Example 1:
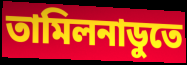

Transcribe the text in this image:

তামিলনাডুতে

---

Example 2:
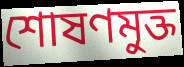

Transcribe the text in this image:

শোষণমুক্ত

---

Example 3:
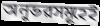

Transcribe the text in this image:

অনুভৱসমূহেই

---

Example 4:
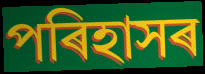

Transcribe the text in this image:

পৰিহাসৰ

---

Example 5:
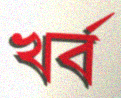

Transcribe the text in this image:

খৰ্ব